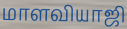
மாளவியாஜி